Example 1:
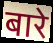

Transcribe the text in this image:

बारे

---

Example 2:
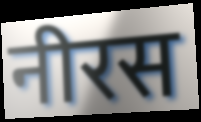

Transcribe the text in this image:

नीरस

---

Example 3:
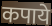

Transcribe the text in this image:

कपाये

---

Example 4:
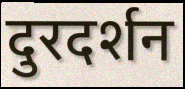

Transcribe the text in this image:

दुरदर्शन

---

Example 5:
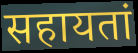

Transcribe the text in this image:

सहायतां